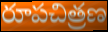
రూపచిత్రణ